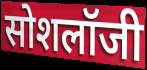
सोशलॉजी